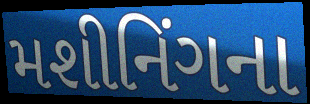
મશીનિંગના